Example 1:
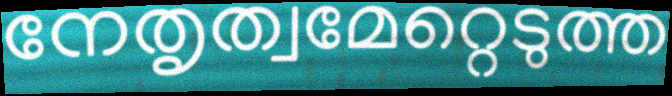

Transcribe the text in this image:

നേതൃത്വമേറ്റെടുത്ത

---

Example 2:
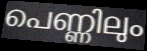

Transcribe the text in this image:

പെണ്ണിലും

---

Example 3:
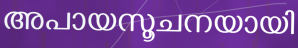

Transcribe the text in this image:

അപായസൂചനയായി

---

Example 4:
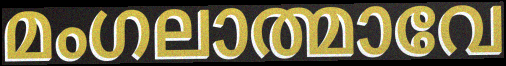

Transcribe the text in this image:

മംഗലാത്മാവേ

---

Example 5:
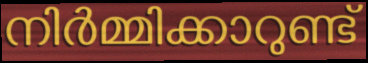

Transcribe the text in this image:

നിർമ്മിക്കാറുണ്ട്